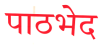
पाठभेद